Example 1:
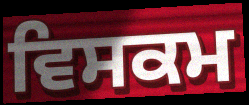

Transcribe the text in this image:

ਵਿਸਕਮ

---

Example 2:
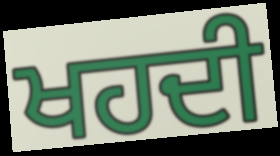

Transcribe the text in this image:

ਖਹਦੀ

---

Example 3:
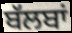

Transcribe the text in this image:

ਬੱਲਬਾਂ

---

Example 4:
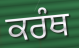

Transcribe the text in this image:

ਕਰੰਥ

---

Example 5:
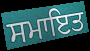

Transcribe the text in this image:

ਸਮਾਇਤ